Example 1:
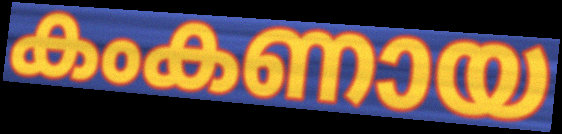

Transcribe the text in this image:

കംകണായ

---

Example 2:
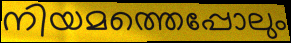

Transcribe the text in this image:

നിയമത്തെപ്പോലും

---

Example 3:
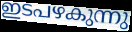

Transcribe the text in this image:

ഇടപഴകുന്നു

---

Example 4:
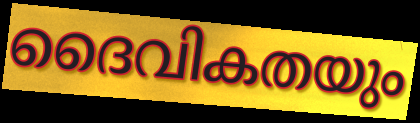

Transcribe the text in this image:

ദൈവികതയും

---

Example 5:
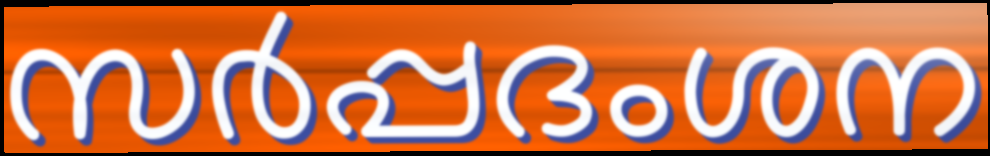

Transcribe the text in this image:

സർപ്പദംശന